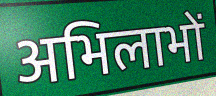
अभिलाभों